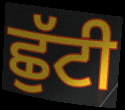
ਛੁੱਟੀ